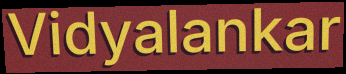
Vidyalankar